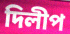
দিলীপ